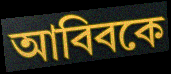
আবিবকে